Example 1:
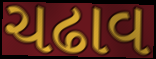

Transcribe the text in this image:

ચઢાવ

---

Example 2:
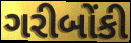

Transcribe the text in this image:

ગરીબોંકી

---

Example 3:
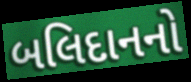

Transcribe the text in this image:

બલિદાનનો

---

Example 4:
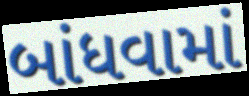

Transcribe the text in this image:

બાંધવામાં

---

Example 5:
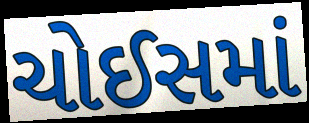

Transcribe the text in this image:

ચોઈસમાં